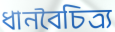
ধানবৈচিত্র্য